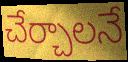
చేర్చాలనే